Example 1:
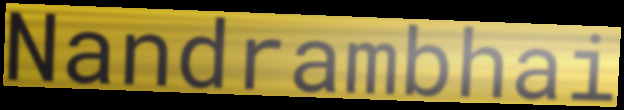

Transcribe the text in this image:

Nandrambhai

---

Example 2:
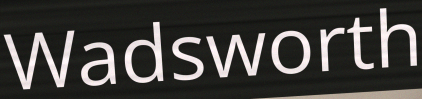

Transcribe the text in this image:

Wadsworth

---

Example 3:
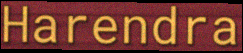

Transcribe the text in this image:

Harendra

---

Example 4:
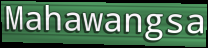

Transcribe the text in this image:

Mahawangsa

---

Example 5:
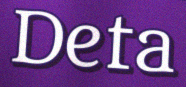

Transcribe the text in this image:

Deta